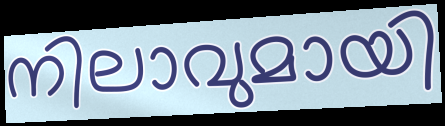
നിലാവുമായി